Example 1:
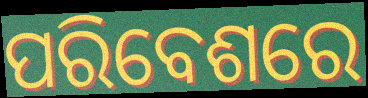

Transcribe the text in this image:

ପରିବେଶରେ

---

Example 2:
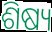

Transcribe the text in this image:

ଶିଷ୍ୟ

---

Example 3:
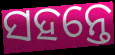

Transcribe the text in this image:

ସହନ୍ତେ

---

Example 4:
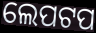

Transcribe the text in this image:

ଲେପଟପ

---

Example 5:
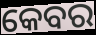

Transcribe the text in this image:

କେବର